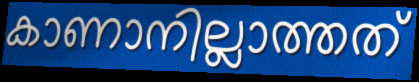
കാണാനില്ലാത്തത്